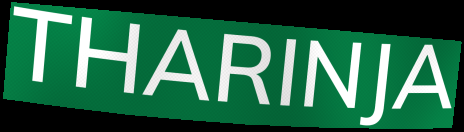
THARINJA